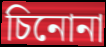
চিনোনা